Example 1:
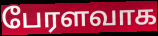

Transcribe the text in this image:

பேரளவாக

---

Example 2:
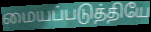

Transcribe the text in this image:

மையப்படுத்தியே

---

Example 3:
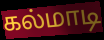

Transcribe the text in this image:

கல்மாடி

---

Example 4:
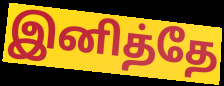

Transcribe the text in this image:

இனித்தே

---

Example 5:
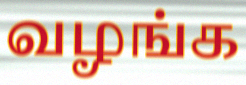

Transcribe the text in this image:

வழங்க